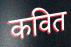
कवित